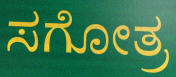
ಸಗೋತ್ರ